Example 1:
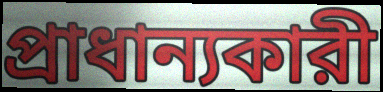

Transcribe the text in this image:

প্রাধান্যকারী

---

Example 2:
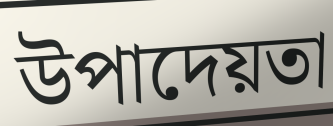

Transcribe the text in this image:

উপাদেয়তা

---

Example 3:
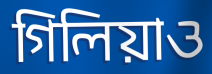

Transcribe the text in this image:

গিলিয়াও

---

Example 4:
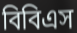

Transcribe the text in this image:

বিবিএস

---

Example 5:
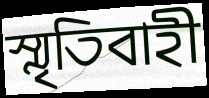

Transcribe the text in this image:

স্মৃতিবাহী